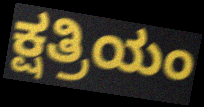
ಕ್ಷತ್ರಿಯಂ